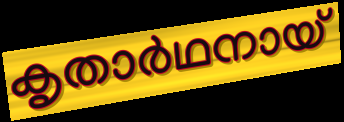
കൃതാർഥനായ്